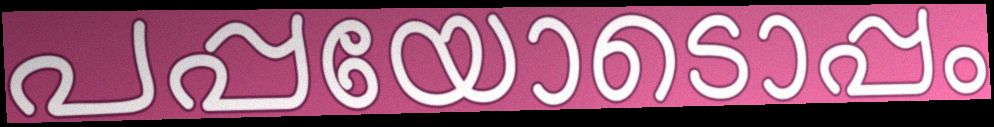
പപ്പയോടൊപ്പം